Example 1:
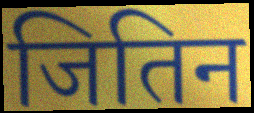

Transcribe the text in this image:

जितिन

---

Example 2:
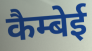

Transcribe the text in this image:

कैम्बेई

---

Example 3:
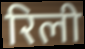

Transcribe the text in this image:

रिली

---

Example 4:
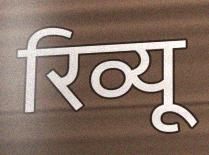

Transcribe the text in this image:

रिव्यू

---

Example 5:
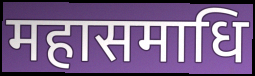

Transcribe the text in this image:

महासमाधि